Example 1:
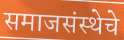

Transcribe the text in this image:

समाजसंस्थेचे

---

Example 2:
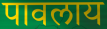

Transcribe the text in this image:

पावलाय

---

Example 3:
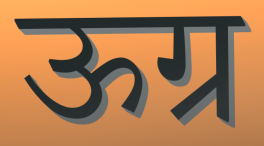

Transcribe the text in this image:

ऊग्र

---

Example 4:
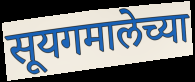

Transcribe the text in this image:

सूयगमालेच्या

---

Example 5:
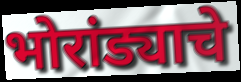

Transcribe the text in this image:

भोरांड्याचे